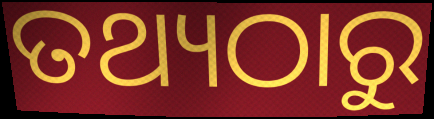
ତଥ୍ୟଠାରୁ